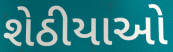
શેઠીયાઓ